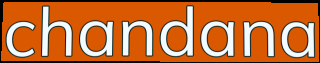
chandana